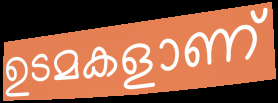
ഉടമകളാണ്